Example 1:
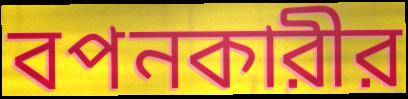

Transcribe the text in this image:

বপনকারীর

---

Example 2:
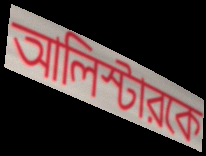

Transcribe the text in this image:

আলিস্টারকে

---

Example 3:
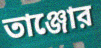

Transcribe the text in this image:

তাঞ্জোর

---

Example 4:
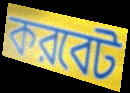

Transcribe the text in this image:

করবেট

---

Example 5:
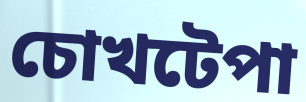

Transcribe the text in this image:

চোখটেপা